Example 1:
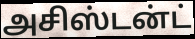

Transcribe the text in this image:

அசிஸ்டன்ட்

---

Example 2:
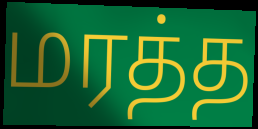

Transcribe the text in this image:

மரத்த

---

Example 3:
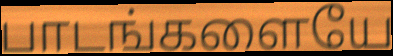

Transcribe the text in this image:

பாடங்களையே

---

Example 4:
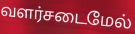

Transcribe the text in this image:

வளர்சடைமேல்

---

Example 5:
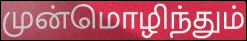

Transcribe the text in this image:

முன்மொழிந்தும்